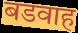
बडवाह